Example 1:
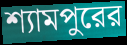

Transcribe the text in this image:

শ্যামপুরের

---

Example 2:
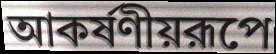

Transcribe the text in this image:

আকর্ষণীয়রূপে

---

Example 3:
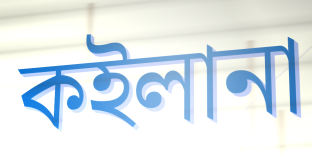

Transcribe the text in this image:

কইলানা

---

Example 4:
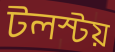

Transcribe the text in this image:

টলস্টয়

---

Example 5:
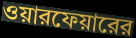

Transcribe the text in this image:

ওয়ারফেয়ারের